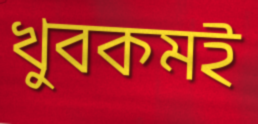
খুবকমই